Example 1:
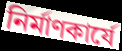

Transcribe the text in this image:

নির্মাণকার্যে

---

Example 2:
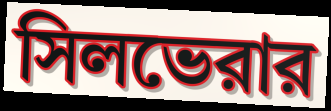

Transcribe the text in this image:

সিলভেরার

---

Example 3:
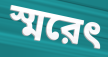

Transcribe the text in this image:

স্মরেৎ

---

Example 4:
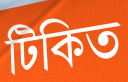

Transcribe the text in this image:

টিকিত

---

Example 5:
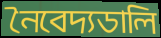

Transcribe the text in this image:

নৈবেদ্যডালি